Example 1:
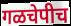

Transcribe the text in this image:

गळचेपीच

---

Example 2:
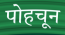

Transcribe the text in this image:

पोहचून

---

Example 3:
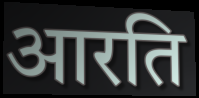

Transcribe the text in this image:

आरति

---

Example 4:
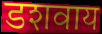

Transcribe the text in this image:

डशवाय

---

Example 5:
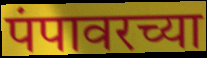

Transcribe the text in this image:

पंपावरच्या